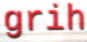
grih